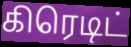
கிரெடிட்